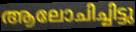
ആലോചിച്ചിട്ടു